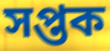
সপ্তক